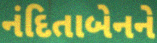
નંદિતાબેનને